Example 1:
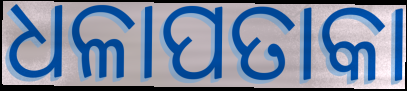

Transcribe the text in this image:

ଧଳାପତାକା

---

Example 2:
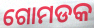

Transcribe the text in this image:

ଗୋମଡକ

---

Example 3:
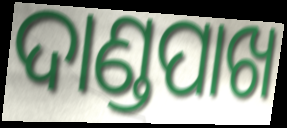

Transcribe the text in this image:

ଦାଣ୍ଡପାଖ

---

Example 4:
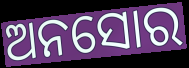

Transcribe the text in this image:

ଅନସୋର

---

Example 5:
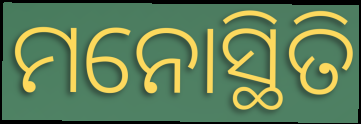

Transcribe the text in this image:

ମନୋସ୍ଥିତି